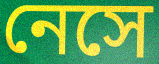
নেসে